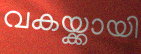
വകയ്ക്കായി